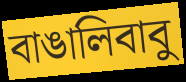
বাঙালিবাবু